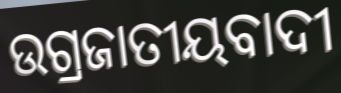
ଉଗ୍ରଜାତୀୟବାଦୀ